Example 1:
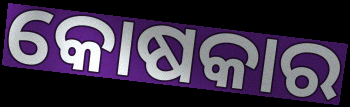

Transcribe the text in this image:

କୋଷକାର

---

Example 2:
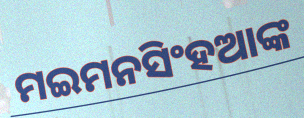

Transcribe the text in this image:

ମଇମନସିଂହଆଙ୍କ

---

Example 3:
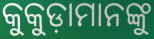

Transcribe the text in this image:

କୁକୁଡ଼ାମାନଙ୍କୁ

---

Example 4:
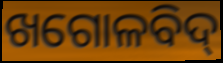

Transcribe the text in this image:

ଖଗୋଳବିଦ୍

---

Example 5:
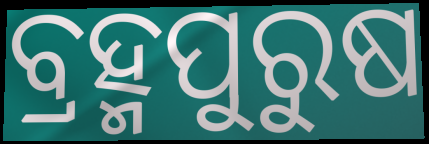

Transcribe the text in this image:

ବ୍ରହ୍ମପୁରୁଷ